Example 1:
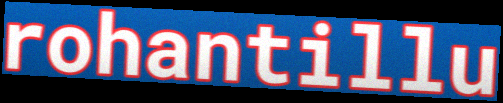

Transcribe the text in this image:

rohantillu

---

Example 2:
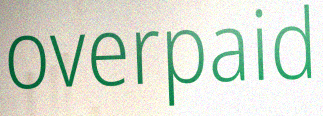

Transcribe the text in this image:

overpaid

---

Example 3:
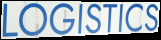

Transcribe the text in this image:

LOGISTICS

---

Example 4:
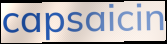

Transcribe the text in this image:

capsaicin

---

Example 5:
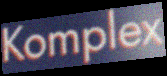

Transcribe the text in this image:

Komplex